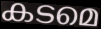
കടമെ